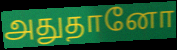
அதுதானோ